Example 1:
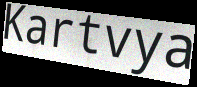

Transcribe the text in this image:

Kartvya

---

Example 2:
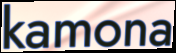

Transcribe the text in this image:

kamona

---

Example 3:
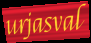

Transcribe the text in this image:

urjasval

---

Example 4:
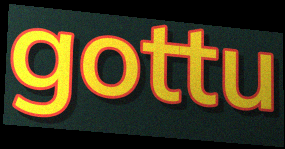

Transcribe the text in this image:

gottu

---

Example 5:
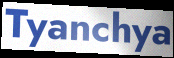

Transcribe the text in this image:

Tyanchya